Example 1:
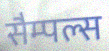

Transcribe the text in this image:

सैम्‍पल्‍स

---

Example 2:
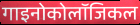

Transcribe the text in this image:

गाइनोकोलॉजिकल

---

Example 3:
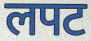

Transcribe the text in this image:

लपट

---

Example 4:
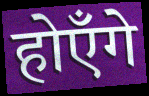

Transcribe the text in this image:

होएँगे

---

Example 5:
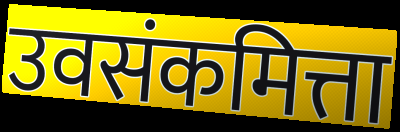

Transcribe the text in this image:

उवसंकमित्ता